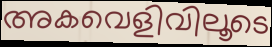
അകവെളിവിലൂടെ